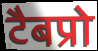
टैबप्रो